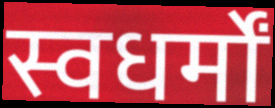
स्वधर्मों